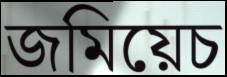
জমিয়েচ